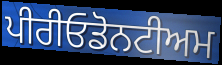
ਪੀਰੀਓਡੋਨਟੀਅਮ